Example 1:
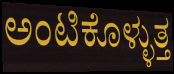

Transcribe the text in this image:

ಅಂಟಿಕೊಳ್ಳುತ್ತ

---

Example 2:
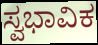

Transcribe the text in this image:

ಸ್ವಭಾವಿಕ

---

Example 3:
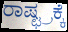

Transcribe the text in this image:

ರಾಷ್ಟ್ರಕ್ಕೆ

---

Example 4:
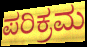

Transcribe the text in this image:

ಪರಿಕ್ರಮ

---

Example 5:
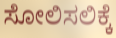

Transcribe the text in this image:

ಸೋಲಿಸಲಿಕ್ಕೆ